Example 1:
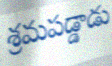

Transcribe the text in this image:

శ్రమపడ్డాడు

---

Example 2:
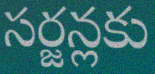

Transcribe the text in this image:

సర్జన్లకు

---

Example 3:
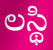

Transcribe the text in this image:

లస్థి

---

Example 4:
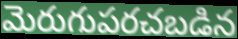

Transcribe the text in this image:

మెరుగుపరచబడిన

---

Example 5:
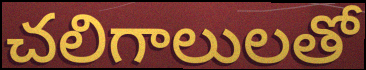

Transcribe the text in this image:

చలిగాలులతో